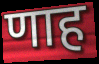
णाह